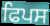
ਫਿਪਸ